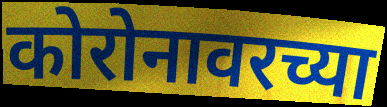
कोरोनावरच्या